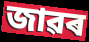
জাৱৰ